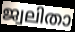
ജ്വലിതാ